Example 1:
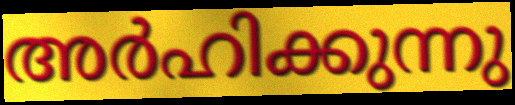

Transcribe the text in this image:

അർഹിക്കുന്നു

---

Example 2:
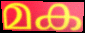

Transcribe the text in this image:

മക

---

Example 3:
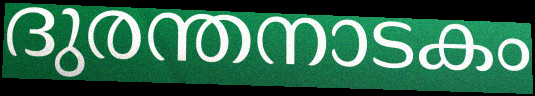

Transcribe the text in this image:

ദുരന്തനാടകം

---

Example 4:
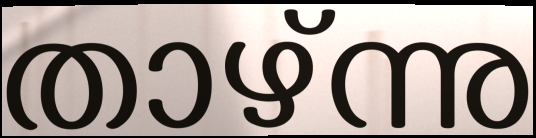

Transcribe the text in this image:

താഴ്ന്നു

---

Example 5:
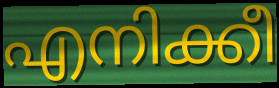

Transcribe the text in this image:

എനിക്കീ